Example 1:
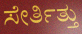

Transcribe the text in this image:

ಸೇರ್ತಿತ್ತು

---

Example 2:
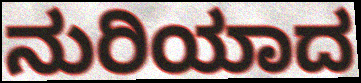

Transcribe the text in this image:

ನುರಿಯಾದ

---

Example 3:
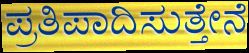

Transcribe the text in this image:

ಪ್ರತಿಪಾದಿಸುತ್ತೇನೆ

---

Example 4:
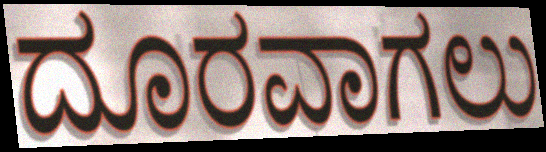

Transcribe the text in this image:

ದೂರವಾಗಲು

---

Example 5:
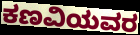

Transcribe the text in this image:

ಕಣವಿಯವರ